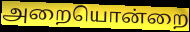
அறையொன்றை